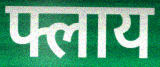
फ्लाय